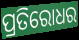
ପ୍ରତିରୋଧର